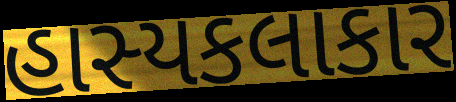
હાસ્યકલાકાર